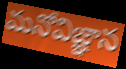
మనోవిజ్ఞాన